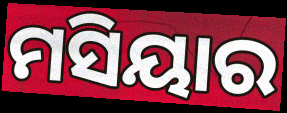
ମସିୟାର